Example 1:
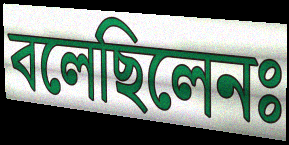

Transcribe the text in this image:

বলেছিলেনঃ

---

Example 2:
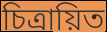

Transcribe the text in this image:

চিত্রায়িত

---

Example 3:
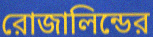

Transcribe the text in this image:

রোজালিন্ডের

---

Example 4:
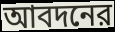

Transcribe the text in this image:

আবদনের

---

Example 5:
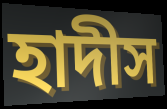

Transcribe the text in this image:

হাদীস